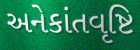
અનેકાંતવૃષ્ટિ